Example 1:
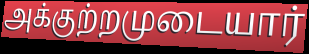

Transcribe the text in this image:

அக்குற்றமுடையார்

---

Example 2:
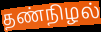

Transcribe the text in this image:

தண்நிழல்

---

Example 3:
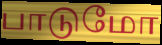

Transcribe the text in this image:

பாடுமோ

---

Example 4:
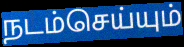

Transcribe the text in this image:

நடம்செய்யும்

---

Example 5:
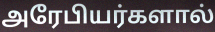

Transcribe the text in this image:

அரேபியர்களால்